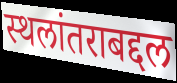
स्थलांतराबद्दल